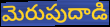
మెరుపుదాడి